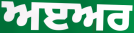
ਅੲਅਰ